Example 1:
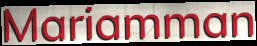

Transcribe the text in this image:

Mariamman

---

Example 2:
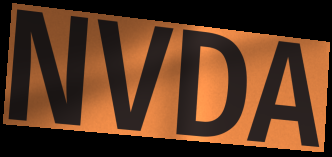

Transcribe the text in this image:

NVDA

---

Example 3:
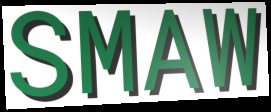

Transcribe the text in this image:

SMAW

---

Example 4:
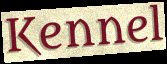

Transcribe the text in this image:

Kennel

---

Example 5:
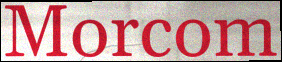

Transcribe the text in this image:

Morcom